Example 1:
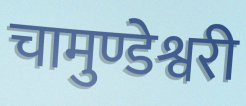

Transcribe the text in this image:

चामुण्डेश्वरी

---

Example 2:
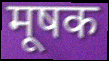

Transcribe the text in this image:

मूषक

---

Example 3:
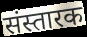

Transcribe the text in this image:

संस्तारक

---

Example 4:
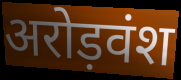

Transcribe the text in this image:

अरोड़वंश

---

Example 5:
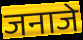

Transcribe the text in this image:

जनाजे